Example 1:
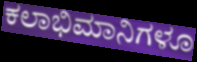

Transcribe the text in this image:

ಕಲಾಭಿಮಾನಿಗಳೂ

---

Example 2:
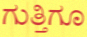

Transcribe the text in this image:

ಗುತ್ತಿಗೂ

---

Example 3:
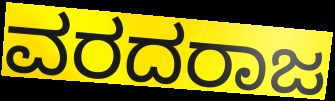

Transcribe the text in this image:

ವರದರಾಜ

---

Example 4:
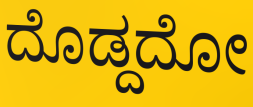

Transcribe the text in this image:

ದೊಡ್ದದೋ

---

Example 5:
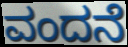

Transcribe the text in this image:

ವಂದನೆ